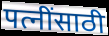
पत्नींसाठी